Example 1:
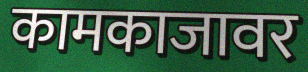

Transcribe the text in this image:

कामकाजावर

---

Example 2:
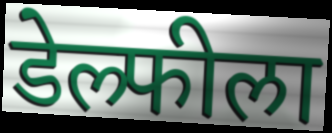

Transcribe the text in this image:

डेल्फीला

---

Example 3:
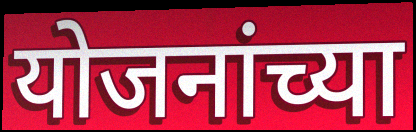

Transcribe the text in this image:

योजनांच्या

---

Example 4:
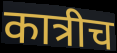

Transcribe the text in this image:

कात्रीच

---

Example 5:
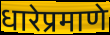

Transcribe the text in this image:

धारेप्रमाणे